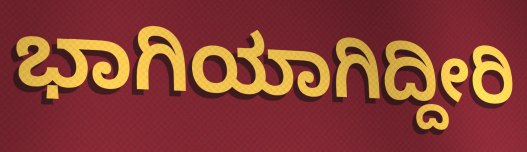
ಭಾಗಿಯಾಗಿದ್ದೀರಿ